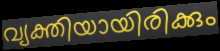
വ്യക്തിയായിരിക്കും